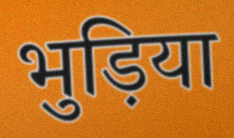
भुड़िया